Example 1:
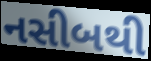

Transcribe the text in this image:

નસીબથી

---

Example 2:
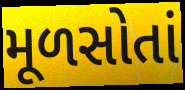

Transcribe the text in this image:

મૂળસોતાં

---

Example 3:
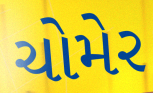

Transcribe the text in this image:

ચોમેર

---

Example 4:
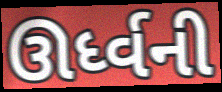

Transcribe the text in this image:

ઊર્ધ્વની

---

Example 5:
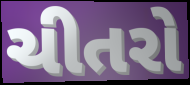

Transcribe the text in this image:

ચીતરો